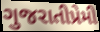
ગુજરાતીપ્રેમી